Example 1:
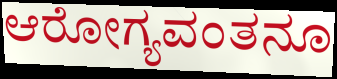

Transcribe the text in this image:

ಆರೋಗ್ಯವಂತನೂ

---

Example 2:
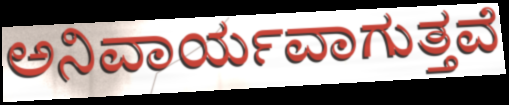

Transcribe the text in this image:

ಅನಿವಾರ್ಯವಾಗುತ್ತವೆ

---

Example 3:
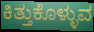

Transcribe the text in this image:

ಕಿತ್ತುಕೊಳ್ಳುವ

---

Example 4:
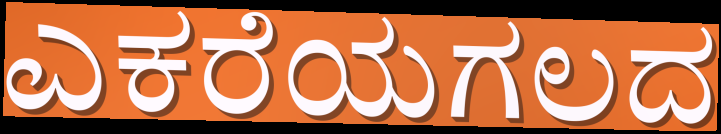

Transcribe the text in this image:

ಎಕರೆಯಗಲದ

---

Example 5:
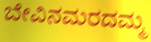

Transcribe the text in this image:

ಬೇವಿನಮರದಮ್ಮ